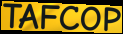
TAFCOP